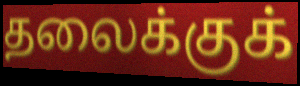
தலைக்குக்